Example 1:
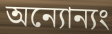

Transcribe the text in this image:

অন্যোন্যং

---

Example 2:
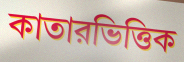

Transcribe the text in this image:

কাতারভিত্তিক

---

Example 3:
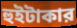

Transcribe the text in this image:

হুইটাকার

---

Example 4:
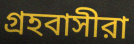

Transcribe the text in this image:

গ্রহবাসীরা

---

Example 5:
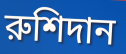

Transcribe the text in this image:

রুশিদান